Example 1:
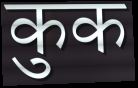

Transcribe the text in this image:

कुक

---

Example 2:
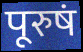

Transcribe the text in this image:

पूरुषं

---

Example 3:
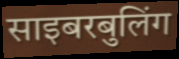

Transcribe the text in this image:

साइबरबुलिंग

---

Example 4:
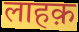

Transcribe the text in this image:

लाहक़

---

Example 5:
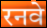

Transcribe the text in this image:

रनवे